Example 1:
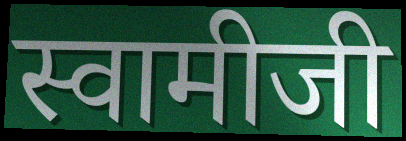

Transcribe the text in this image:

स्वामीजी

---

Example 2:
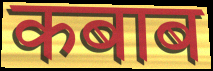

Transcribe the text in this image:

कबाब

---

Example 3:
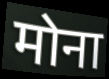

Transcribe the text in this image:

मोना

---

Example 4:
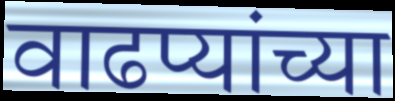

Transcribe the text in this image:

वाढप्यांच्या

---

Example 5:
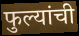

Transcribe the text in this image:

फुल्यांची